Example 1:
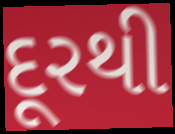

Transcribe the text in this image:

દૂરથી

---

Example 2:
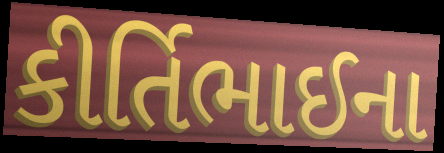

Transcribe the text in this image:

કીર્તિભાઈના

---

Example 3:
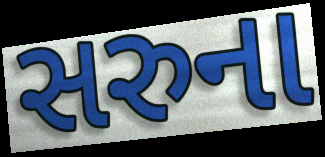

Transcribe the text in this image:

સરુના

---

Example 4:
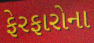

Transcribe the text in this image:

ફેરફારોના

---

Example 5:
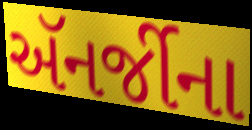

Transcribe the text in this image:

ઍનર્જીના